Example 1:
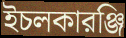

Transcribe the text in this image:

ইচলকারঞ্জি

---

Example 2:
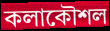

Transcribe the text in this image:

কলাকৌশল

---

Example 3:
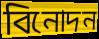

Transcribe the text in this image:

বিনোদন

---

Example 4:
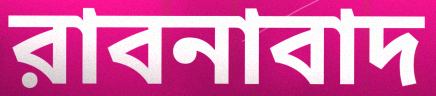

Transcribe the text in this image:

রাবনাবাদ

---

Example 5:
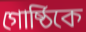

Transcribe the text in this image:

গোষ্ঠিকে